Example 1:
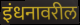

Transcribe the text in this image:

इंधनावरील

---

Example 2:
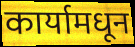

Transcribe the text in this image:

कार्यामधून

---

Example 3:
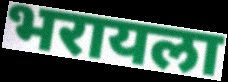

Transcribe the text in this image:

भरायला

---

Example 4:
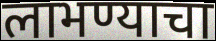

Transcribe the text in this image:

लाभण्याचा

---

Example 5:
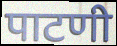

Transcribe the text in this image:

पाटणी